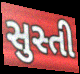
સુસ્તી